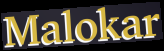
Malokar